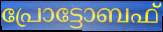
പ്രോട്ടോബഫ്